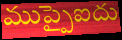
ముప్పైఐదు